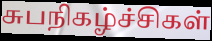
சுபநிகழ்ச்சிகள்